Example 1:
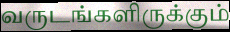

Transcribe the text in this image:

வருடங்களிருக்கும்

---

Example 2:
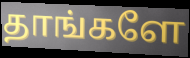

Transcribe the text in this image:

தாங்களே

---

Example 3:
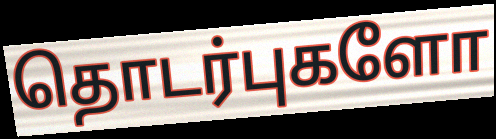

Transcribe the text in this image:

தொடர்புகளோ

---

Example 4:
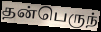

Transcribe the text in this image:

தன்பெருந்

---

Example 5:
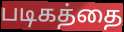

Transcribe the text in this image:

படிகத்தை